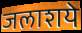
जलाशये